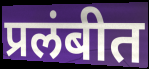
प्रलंबीत